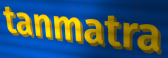
tanmatra